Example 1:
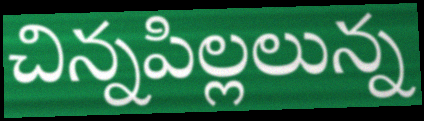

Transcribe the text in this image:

చిన్నపిల్లలున్న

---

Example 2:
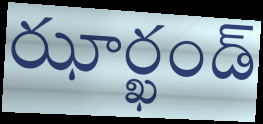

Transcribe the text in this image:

ఝార్ఖండ్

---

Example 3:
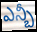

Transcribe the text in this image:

ఎన్బీ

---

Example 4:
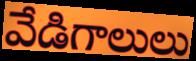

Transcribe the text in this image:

వేడిగాలులు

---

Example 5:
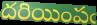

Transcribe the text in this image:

దరియింపఁ